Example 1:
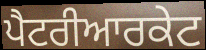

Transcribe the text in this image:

ਪੈਟਰੀਆਰਕੇਟ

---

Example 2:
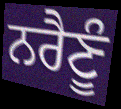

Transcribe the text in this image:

ਨਰੈਣੂੰ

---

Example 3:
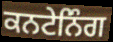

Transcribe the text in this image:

ਕਨਟੇਨਿੰਗ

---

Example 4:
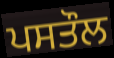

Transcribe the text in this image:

ਪਸਤੌਲ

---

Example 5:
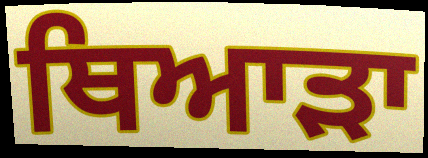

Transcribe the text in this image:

ਥਿਆੜਾ